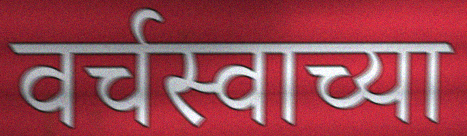
वर्चस्वाच्या